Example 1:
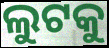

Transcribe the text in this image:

ଲୁଟକୁ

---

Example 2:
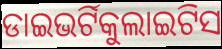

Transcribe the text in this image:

ଡାଇଭର୍ଟିକୁଲାଇଟିସ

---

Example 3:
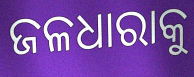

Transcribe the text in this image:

ଜଳଧାରାକୁ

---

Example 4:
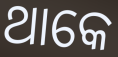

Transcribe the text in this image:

ଥାକେ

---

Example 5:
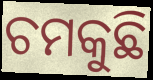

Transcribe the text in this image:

ଚମକୁଛି